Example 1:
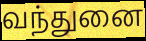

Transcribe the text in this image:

வந்துனை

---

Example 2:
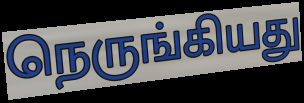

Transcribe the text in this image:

நெருங்கியது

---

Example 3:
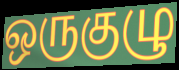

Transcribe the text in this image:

ஒருகுழு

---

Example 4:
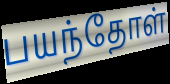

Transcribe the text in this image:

பயந்தோள்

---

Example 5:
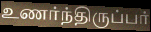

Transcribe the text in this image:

உணர்ந்திருப்பர்